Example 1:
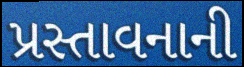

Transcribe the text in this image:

પ્રસ્તાવનાની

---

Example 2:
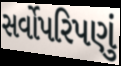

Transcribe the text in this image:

સર્વોપરિપણું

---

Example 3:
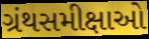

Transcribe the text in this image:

ગ્રંથસમીક્ષાઓ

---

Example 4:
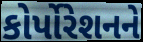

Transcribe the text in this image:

કોર્પોરેશનને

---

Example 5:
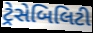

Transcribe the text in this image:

ટ્રેસેબિલિટી